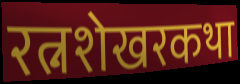
रत्नशेखरकथा